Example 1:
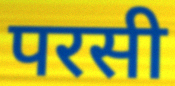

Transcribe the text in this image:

परसी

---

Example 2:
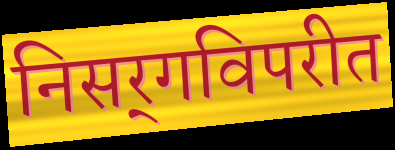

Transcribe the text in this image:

निसर्गविपरीत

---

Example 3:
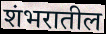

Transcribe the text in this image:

शंभरातील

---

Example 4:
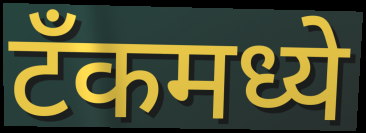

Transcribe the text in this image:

टॅंकमध्ये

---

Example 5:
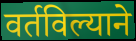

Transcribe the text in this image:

वर्तविल्याने